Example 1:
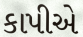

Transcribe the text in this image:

કાપીએ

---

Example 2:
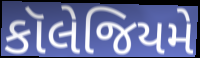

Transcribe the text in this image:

કૉલેજિયમે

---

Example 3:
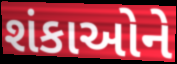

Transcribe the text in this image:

શંકાઓને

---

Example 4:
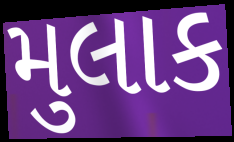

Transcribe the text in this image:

મુલાક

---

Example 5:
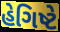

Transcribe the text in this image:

હેગિષ્ટે